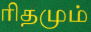
ரிதமும்